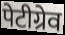
पेटीग्रेव